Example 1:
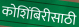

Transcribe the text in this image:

कोशिंबिरीसाठी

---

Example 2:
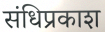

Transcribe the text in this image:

संधिप्रकाश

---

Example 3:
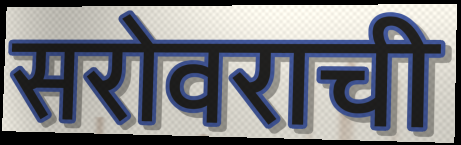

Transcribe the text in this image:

सरोवराची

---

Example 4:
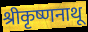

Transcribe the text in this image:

श्रीकृष्णनाथू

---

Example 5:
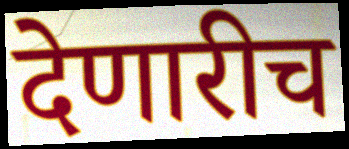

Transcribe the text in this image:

देणारीच